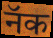
नॅक